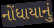
નોંધાયાનું